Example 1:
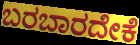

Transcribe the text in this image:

ಬರಬಾರದೇಕೆ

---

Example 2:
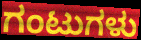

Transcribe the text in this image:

ಗಂಟುಗಳು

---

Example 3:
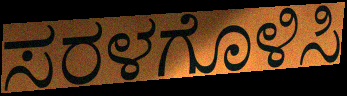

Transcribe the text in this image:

ಸರಳಗೊಳಿಸಿ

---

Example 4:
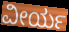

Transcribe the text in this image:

ವೀರ್ಯ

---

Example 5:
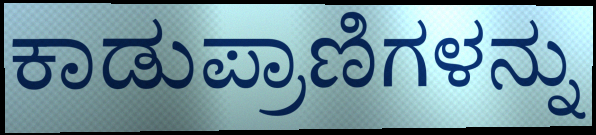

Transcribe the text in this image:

ಕಾಡುಪ್ರಾಣಿಗಳನ್ನು